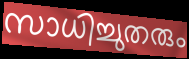
സാധിച്ചുതരും